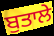
ਬੁਤਾਲੇ